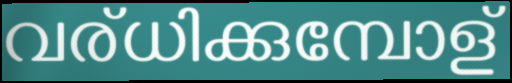
വര്ധിക്കുമ്പോള്